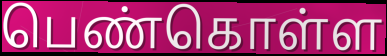
பெண்கொள்ள